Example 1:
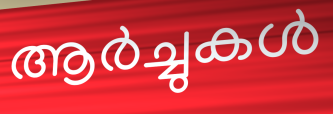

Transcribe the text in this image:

ആർച്ചുകൾ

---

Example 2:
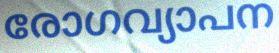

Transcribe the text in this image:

രോഗവ്യാപന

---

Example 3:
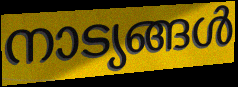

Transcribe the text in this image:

നാട്യങ്ങൾ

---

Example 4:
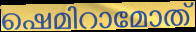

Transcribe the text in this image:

ഷെമിറാമോത്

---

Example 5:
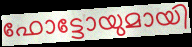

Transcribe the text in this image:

ഫോട്ടോയുമായി